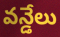
వన్డేలు